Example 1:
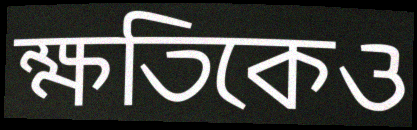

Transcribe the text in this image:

ক্ষতিকেও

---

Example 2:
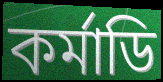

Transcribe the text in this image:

কর্মাডি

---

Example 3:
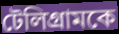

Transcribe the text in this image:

টেলিগ্রামকে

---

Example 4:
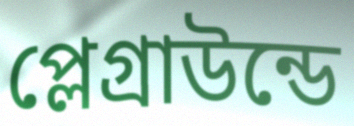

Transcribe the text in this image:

প্লেগ্রাউন্ডে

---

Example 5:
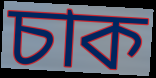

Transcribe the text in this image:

চাক